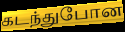
கடந்துபோன